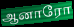
ஆனாரோ